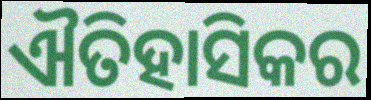
ଐତିହାସିକର